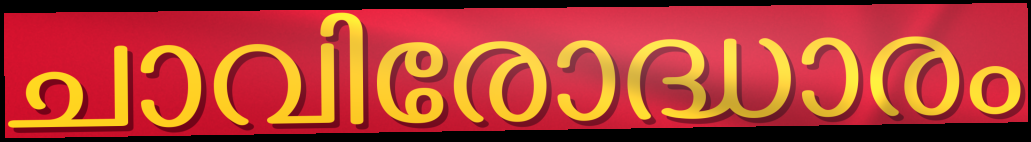
ചാവിരോദ്ധാരം